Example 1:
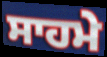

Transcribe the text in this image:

ਸਾਹਮੇ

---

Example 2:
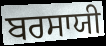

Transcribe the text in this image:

ਬਰਸਾਯੀ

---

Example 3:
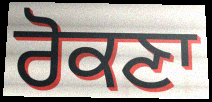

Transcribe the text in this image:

ਰੋਕਣਾ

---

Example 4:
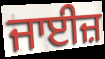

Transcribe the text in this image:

ਜਾਈਜ਼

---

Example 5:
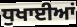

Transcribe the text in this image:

ਧੁਖਾਈਆਂ